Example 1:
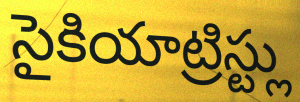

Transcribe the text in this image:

సైకియాట్రిస్ట్లు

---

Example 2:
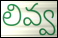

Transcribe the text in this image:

లివ్వ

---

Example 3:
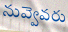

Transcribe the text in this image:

నువ్వెవరు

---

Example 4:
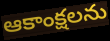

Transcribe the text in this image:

ఆకాంక్షలను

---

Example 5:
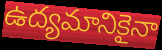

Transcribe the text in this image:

ఉద్యమానికైనా